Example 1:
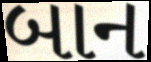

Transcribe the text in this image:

બાન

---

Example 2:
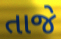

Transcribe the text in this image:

તાજે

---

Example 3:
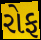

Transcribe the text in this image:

રોફ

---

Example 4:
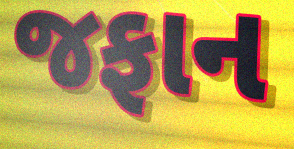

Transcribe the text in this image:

જફાન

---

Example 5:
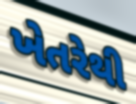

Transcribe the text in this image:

ખેતરેથી